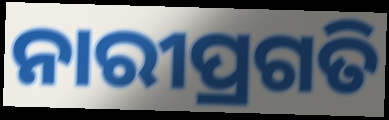
ନାରୀପ୍ରଗତି